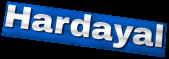
Hardayal